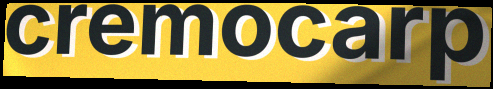
cremocarp